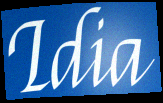
Idia